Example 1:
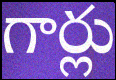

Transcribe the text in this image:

గార్లు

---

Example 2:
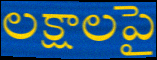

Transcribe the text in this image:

లక్షాలపై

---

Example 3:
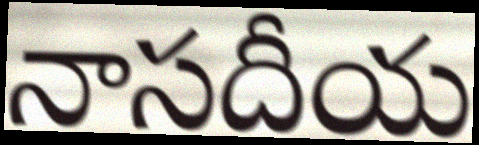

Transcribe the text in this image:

నాసదీయ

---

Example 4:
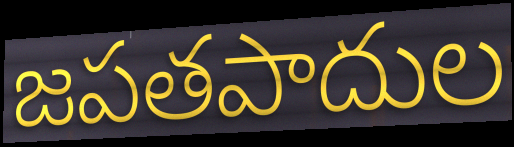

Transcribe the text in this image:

జపతపాదుల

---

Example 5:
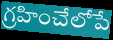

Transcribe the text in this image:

గ్రహించేలోపే